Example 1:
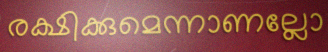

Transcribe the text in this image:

രക്ഷിക്കുമെന്നാണല്ലോ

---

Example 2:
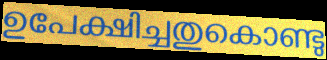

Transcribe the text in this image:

ഉപേക്ഷിച്ചതുകൊണ്ടു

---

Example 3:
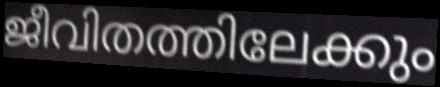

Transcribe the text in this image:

ജീവിതത്തിലേക്കും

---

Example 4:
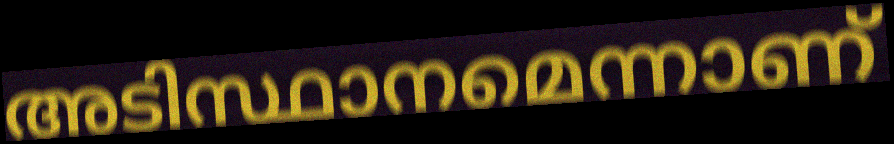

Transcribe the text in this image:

അടിസ്ഥാനമെന്നാണ്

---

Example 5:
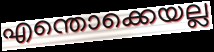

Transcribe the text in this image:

എന്തൊക്കെയല്ല